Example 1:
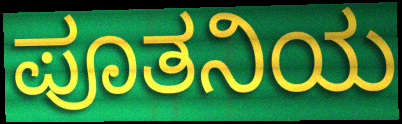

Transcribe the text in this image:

ಪೂತನಿಯ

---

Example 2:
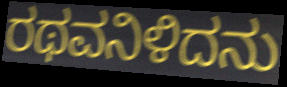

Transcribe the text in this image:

ರಥವನಿಳಿದನು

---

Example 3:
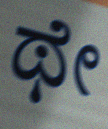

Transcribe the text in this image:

ಥೇ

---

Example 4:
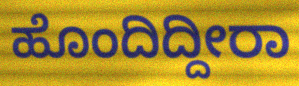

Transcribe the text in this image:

ಹೊಂದಿದ್ದೀರಾ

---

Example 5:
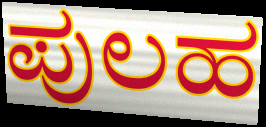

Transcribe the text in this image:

ಪುಲಹ